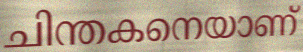
ചിന്തകനെയാണ്